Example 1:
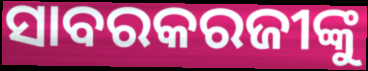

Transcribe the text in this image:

ସାବରକରଜୀଙ୍କୁ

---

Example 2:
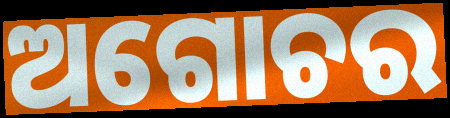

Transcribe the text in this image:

ଅଗୋଚର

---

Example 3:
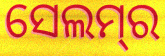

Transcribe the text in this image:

ସେଲମ୍‌ର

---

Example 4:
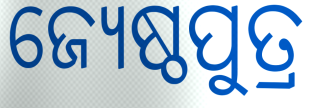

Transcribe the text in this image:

ଜ୍ୟେଷ୍ଠପୁତ୍ର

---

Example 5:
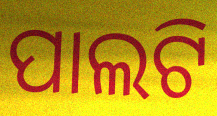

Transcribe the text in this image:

ପାଲଟି